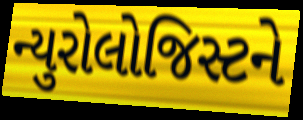
ન્યુરોલોજિસ્ટને